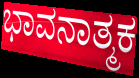
ಭಾವನಾತ್ಮಕ